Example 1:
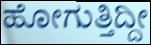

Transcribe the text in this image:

ಹೋಗುತ್ತಿದ್ದೀ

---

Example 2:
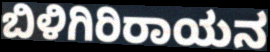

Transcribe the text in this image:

ಬಿಳಿಗಿರಿರಾಯನ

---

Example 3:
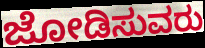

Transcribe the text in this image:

ಜೋಡಿಸುವರು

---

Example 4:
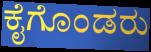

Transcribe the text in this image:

ಕೈಗೊಂಡರು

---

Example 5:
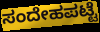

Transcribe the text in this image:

ಸಂದೇಹಪಟ್ಟೆ